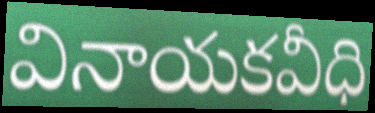
వినాయకవీధి